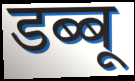
डब्बू